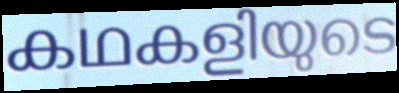
കഥകളിയുടെ